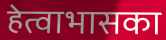
हेत्वाभासका